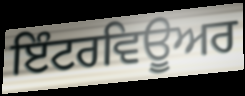
ਇੰਟਰਵਿਊਅਰ